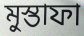
মুস্তাফা